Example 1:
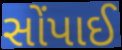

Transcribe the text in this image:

સોંપાઈ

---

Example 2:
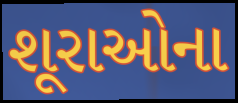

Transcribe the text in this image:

શૂરાઓના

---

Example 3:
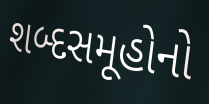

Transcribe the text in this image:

શબ્દસમૂહોનો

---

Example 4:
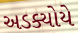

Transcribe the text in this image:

અડક્યોયે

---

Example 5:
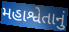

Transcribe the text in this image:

મહાશ્વેતાનું